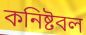
কনিষ্টবল